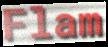
Flam